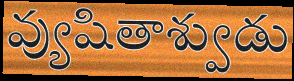
వ్యుషితాశ్వుడు